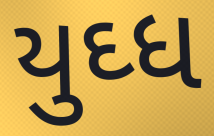
યુઘ્ધ